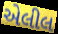
એલીલ